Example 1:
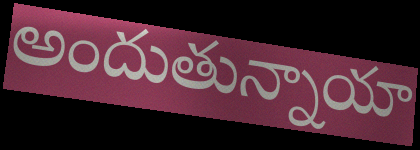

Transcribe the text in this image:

అందుతున్నాయా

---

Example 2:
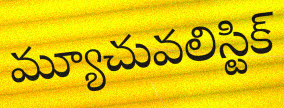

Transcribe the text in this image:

మ్యూచువలిస్టిక్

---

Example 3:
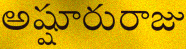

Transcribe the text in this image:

అష్షూరురాజు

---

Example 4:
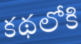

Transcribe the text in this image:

కథలోకి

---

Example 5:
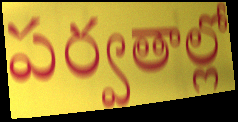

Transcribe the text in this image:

పర్వతాల్లో